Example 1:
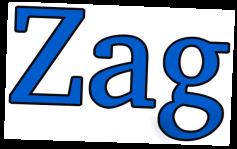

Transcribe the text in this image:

Zag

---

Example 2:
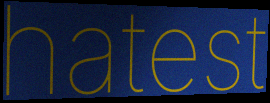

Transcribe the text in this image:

hatest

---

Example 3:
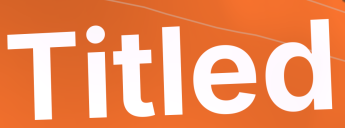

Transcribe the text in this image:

Titled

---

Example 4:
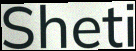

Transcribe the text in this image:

Sheti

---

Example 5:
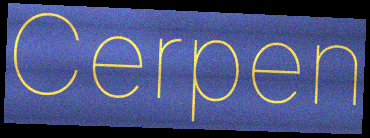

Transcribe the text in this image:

Cerpen